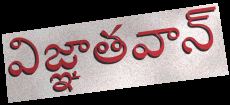
విజ్ఞాతవాన్